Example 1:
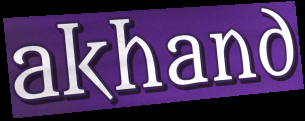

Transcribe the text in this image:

akhand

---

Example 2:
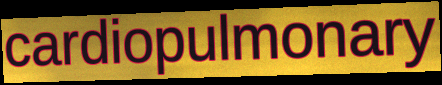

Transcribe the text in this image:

cardiopulmonary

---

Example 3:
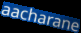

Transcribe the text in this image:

aacharane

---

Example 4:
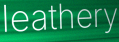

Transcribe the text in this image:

leathery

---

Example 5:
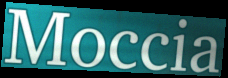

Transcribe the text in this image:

Moccia